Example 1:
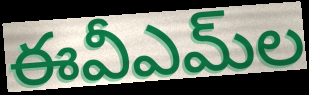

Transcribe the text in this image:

ఈవీఎమ్‌ల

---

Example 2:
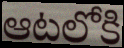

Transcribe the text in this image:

ఆటలోకి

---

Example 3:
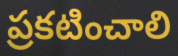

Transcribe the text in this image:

ప్రకటించాలి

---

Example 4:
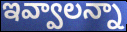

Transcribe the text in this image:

ఇవ్వాలన్నా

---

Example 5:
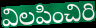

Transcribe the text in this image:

విలపించిరి